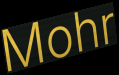
Mohr